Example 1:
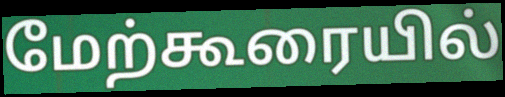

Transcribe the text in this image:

மேற்கூரையில்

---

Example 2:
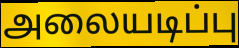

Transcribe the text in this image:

அலையடிப்பு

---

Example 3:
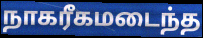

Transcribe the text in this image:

நாகரீகமடைந்த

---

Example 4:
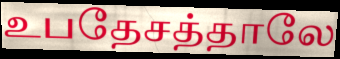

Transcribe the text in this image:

உபதேசத்தாலே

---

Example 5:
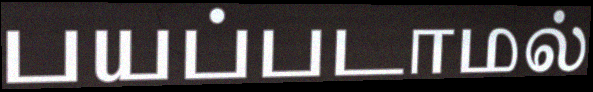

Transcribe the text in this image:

பயப்படாமல்